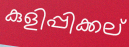
കുളിപ്പിക്കല്